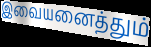
இவையனைத்தும்